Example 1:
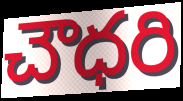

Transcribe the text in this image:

చౌధరి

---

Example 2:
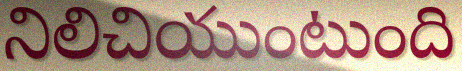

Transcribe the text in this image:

నిలిచియుంటుంది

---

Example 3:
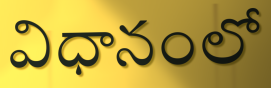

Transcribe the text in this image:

విధానంలో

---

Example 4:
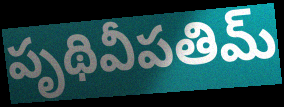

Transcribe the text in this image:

పృథివీపతిమ్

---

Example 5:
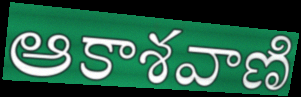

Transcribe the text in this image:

ఆకాశవాణి